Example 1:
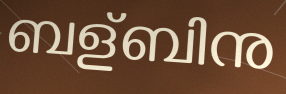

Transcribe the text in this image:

ബള്ബിനു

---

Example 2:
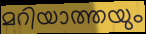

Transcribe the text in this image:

മറിയാത്തയും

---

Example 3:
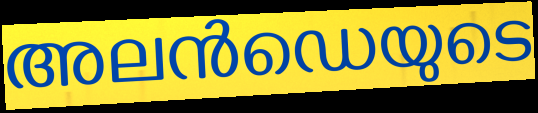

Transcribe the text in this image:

അലൻഡെയുടെ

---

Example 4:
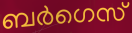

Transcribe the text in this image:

ബർഗെസ്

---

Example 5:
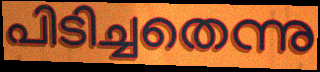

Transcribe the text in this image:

പിടിച്ചതെന്നു